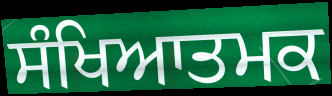
ਸੰਖਿਆਤਮਕ